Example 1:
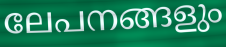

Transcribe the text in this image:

ലേപനങ്ങളും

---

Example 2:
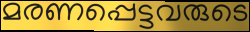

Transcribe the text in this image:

മരണപ്പെട്ടവരുടെ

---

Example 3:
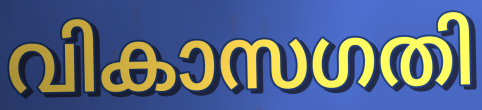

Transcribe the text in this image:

വികാസഗതി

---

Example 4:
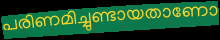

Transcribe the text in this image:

പരിണമിച്ചുണ്ടായതാണോ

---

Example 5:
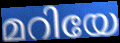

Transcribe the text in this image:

മറിയേ